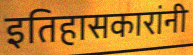
इतिहासकारांनी